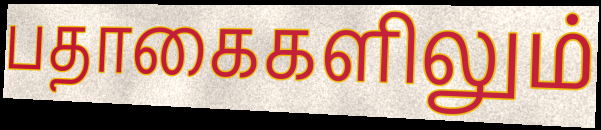
பதாகைகளிலும்